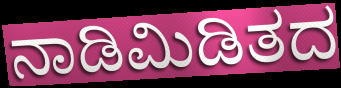
ನಾಡಿಮಿಡಿತದ